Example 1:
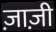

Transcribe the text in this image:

ज़ाज़ी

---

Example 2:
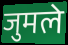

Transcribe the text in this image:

जुमले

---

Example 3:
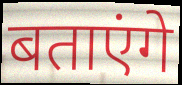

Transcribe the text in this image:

बताएंगे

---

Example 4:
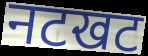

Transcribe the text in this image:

नटखट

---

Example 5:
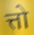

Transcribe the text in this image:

त्तो